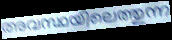
അവസ്ഥയിലെത്തുന്ന